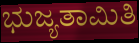
ಭುಜ್ಯತಾಮಿತಿ